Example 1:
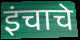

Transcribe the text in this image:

इंचाचे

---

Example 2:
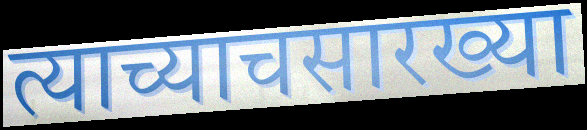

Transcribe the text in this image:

त्याच्याचसारख्या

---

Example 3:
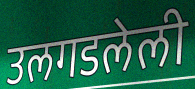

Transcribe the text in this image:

उलगडलेली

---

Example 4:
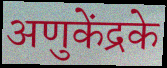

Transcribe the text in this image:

अणुकेंद्रके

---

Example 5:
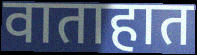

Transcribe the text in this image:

वाताहात